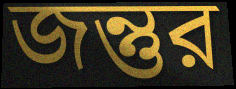
জন্তুর